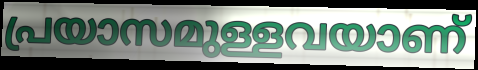
പ്രയാസമുള്ളവയാണ്